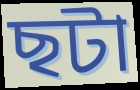
ছটা